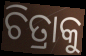
ଚିତ୍ରାକୁ